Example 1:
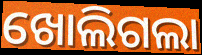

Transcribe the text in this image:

ଖୋଲିଗଲା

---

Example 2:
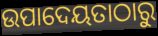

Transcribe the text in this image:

ଉପାଦେୟତାଠାରୁ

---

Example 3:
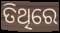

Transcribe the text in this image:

ତିଥିରେ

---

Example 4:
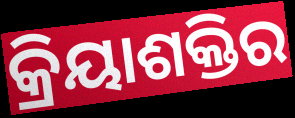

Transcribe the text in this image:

କ୍ରିୟାଶକ୍ତିର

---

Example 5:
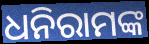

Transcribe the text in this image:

ଧନିରାମଙ୍କ